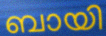
ബായി